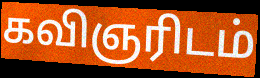
கவிஞரிடம்